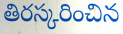
తిరస్కరించిన